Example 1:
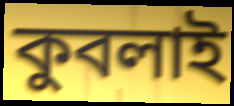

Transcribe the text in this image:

কুবলাই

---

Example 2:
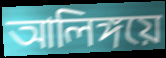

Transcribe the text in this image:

আলিঙ্গয়ে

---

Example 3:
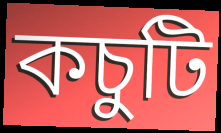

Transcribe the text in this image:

কচুটি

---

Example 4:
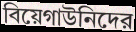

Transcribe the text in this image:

বিয়েগাউনিদের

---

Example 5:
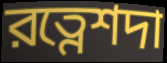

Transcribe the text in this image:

রত্নেশদা